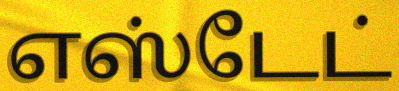
எஸ்டேட்